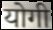
योगी